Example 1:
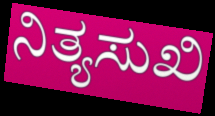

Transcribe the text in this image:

ನಿತ್ಯಸುಖಿ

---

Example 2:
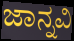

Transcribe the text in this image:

ಜಾನ್ನವಿ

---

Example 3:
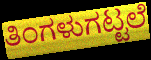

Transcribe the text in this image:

ತಿಂಗಳುಗಟ್ಟಲೆ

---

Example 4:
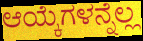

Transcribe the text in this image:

ಆಯ್ಕೆಗಳನ್ನೆಲ್ಲ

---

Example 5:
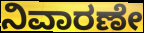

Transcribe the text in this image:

ನಿವಾರಣೇ